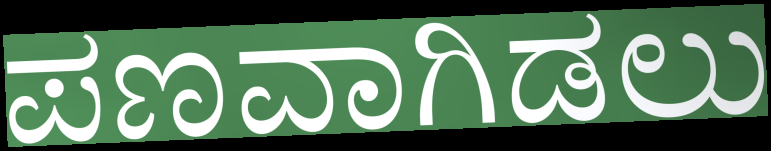
ಪಣವಾಗಿಡಲು